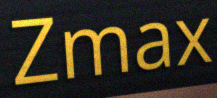
Zmax